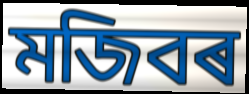
মজিবৰ